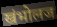
खंभोलज